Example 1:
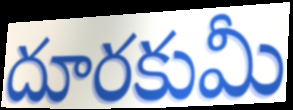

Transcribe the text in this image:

దూరకుమీ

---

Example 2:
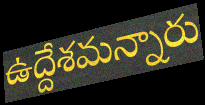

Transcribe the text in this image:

ఉద్దేశమన్నారు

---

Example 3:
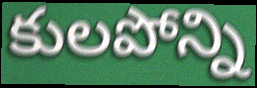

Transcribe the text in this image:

కులపోన్ని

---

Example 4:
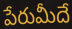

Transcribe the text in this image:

పేరుమీదే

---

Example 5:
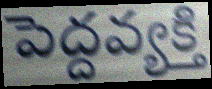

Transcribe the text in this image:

పెద్దవ్యక్తి